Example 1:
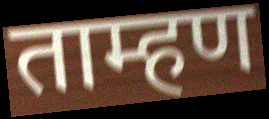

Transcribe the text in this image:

ताम्हण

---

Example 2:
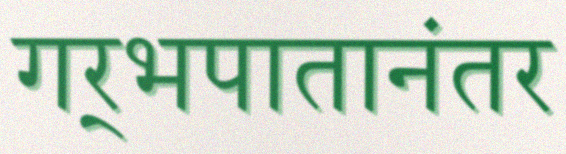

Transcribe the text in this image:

गर्भपातानंतर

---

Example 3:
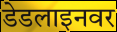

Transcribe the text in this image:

डेडलाइनवर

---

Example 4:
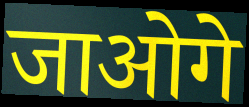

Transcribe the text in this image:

जाओगे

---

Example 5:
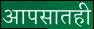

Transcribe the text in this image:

आपसातही